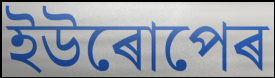
ইউৰোপেৰ